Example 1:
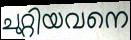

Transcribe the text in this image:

ചുറ്റിയവനെ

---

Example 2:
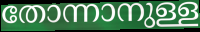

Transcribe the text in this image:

തോന്നാനുള്ള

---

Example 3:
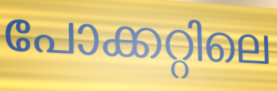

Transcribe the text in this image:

പോക്കറ്റിലെ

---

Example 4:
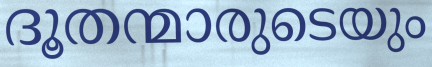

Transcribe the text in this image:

ദൂതന്മാരുടെയും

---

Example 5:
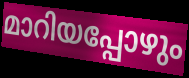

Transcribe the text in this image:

മാറിയപ്പോഴും